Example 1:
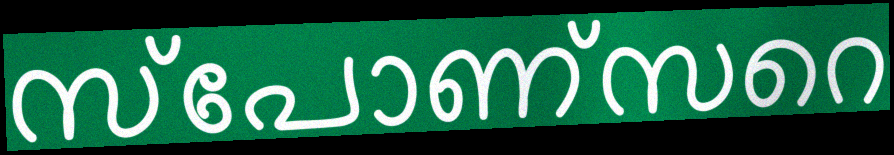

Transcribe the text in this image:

സ്പോണ്സറെ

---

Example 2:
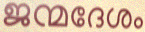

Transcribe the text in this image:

ജന്മദേശം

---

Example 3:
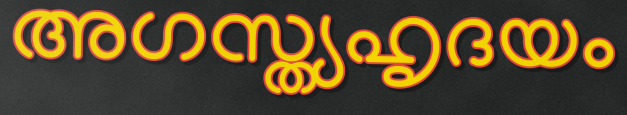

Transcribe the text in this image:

അഗസ്ത്യഹൃദയം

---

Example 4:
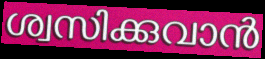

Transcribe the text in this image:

ശ്വസിക്കുവാൻ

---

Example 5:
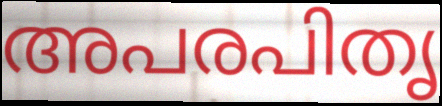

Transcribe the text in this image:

അപരപിതൃ